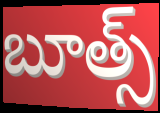
బూత్స్